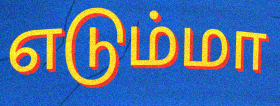
எடும்மா